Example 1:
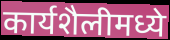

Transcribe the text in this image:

कार्यशैलीमध्ये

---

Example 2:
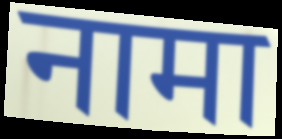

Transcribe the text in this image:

नामा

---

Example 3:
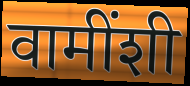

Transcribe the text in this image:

वामींशी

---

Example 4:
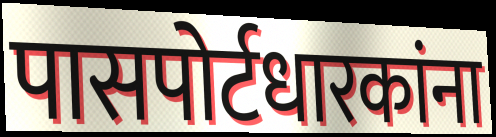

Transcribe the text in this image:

पासपोर्टधारकांना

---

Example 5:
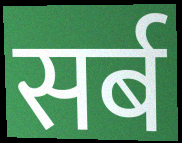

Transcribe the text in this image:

सर्ब